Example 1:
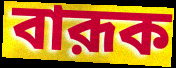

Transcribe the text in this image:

বারূক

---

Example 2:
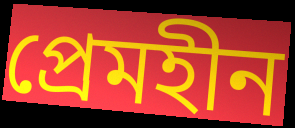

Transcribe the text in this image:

প্রেমহীন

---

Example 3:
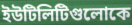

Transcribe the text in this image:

ইউটিলিটিগুলোকে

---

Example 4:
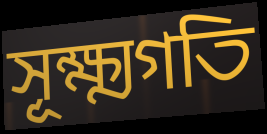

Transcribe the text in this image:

সূক্ষ্মগতি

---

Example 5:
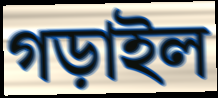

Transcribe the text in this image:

গড়াইল